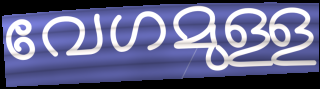
വേഗമുള്ള